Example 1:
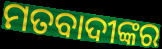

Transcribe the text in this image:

ମତବାଦୀଙ୍କର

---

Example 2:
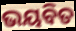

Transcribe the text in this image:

ଭୟବିତ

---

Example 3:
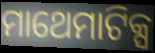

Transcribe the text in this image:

ମାଥେମାଟିକ୍ସ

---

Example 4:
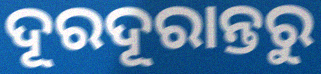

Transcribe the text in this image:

ଦୂରଦୂରାନ୍ତରୁ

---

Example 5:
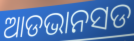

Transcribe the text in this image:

ଆଡଭାନସଡ